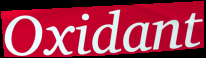
Oxidant